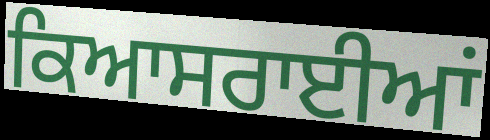
ਕਿਆਸਰਾਈਆਂ